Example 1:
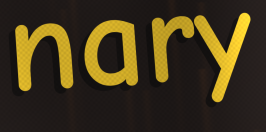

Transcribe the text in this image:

nary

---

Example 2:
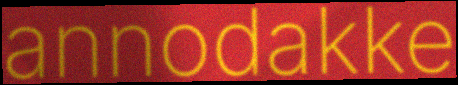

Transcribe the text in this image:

annodakke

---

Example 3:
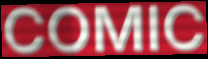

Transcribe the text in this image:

COMIC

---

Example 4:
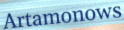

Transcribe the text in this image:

Artamonows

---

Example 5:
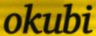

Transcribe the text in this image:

okubi